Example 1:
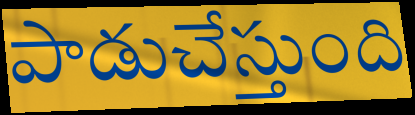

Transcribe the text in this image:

పాడుచేస్తుంది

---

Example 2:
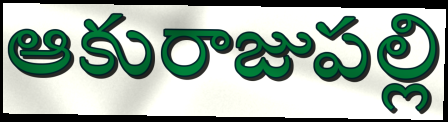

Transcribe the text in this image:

ఆకురాజుపల్లి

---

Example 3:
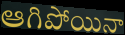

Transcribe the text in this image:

ఆగిపోయినా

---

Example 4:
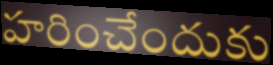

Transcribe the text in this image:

హరించేందుకు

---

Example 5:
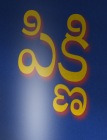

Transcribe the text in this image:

పిక్ణి